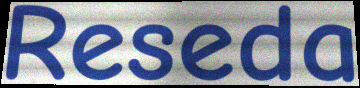
Reseda